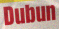
Dubun